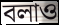
বলাও